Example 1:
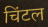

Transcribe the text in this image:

चिंटल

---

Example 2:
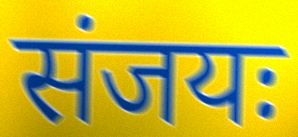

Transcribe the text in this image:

संजयः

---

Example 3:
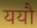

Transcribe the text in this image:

ययौ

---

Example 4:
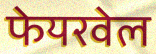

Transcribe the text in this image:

फेयरवेल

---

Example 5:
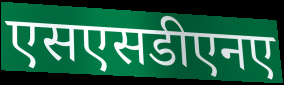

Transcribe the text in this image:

एसएसडीएनए